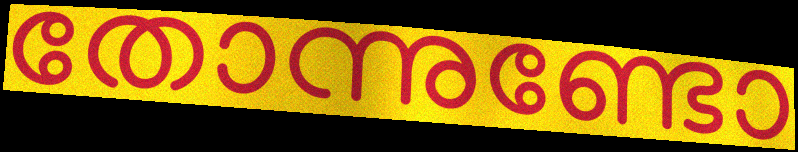
തോന്നുണ്ടോ